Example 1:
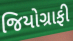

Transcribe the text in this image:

જિયોગ્રાફી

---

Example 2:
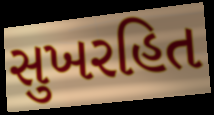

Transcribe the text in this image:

સુખરહિત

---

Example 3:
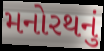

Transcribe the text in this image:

મનોરથનું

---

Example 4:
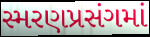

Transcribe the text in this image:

સ્મરણપ્રસંગમાં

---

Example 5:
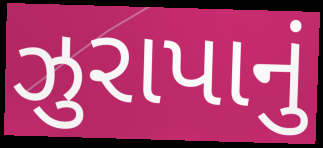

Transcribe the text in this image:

ઝુરાપાનું